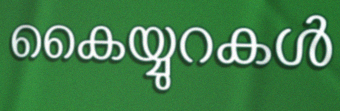
കൈയ്യുറകൾ